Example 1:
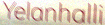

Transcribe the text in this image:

Yelanhalli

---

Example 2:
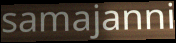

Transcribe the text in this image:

samajanni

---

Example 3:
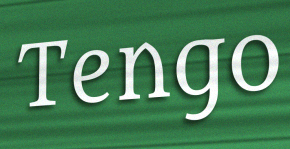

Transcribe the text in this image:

Tengo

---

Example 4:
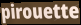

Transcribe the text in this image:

pirouette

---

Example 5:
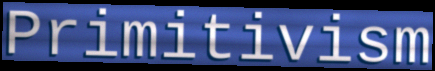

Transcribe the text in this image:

Primitivism